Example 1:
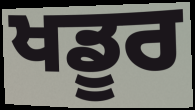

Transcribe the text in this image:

ਖਡੂਰ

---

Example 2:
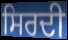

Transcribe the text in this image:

ਸਿਰਦੀ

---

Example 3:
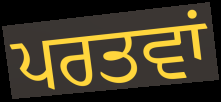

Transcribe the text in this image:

ਪਰਤਵਾਂ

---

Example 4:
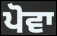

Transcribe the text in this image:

ਪੋਵਾ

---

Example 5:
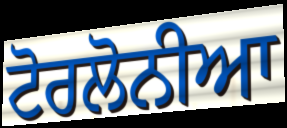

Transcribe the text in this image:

ਟੋਰਲੋਨੀਆ